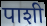
पाशी